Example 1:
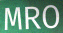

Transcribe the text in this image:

MRO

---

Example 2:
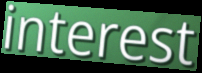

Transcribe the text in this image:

interest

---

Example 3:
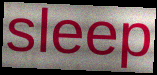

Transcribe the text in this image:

sleep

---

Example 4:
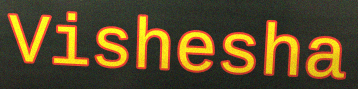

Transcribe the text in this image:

Vishesha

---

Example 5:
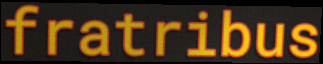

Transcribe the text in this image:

fratribus